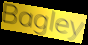
Bagley